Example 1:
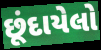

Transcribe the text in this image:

છૂંદાયેલો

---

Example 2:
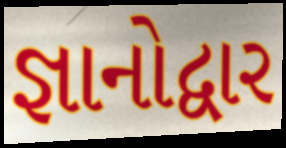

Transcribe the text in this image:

જ્ઞાનોદ્વાર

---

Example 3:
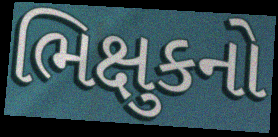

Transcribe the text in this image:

ભિક્ષુકનો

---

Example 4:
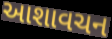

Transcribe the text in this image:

આશાવચન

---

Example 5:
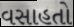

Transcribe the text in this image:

વસાહતો